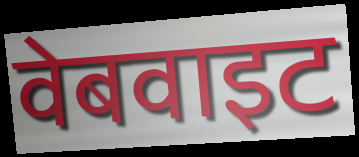
वेबवाइट